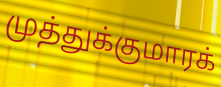
முத்துக்குமாரக்